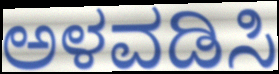
ಅಳವಡಿಸಿ